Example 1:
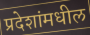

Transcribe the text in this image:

प्रदेशांमधील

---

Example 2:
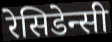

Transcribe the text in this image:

रेसिडेन्सी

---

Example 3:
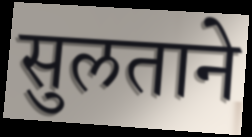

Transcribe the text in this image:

सुलताने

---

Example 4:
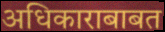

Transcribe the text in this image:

अधिकाराबाबत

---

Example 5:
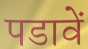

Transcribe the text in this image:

पडावें